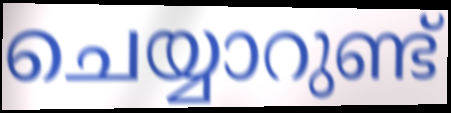
ചെയ്യാറുണ്ട്